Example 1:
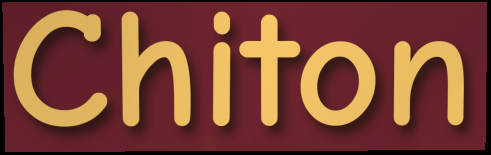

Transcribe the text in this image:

Chiton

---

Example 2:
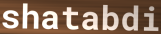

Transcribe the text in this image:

shatabdi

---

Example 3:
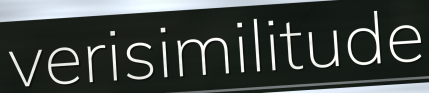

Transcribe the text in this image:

verisimilitude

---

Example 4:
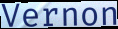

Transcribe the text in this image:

Vernon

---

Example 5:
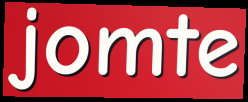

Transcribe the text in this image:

jomte